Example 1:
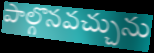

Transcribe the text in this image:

పాల్గొనవచ్చును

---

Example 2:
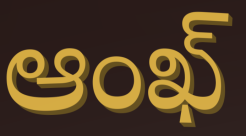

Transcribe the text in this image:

ఆంఖ్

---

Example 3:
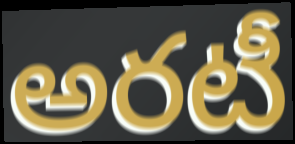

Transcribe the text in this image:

అరటీ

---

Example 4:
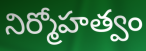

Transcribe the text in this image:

నిర్మోహత్వం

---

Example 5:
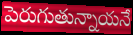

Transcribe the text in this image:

పెరుగుతున్నాయనే